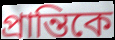
প্রান্তিকে